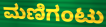
ಮಣಿಗಂಟು